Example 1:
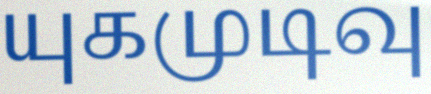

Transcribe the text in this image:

யுகமுடிவு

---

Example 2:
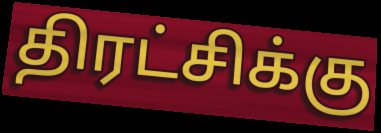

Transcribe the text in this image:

திரட்சிக்கு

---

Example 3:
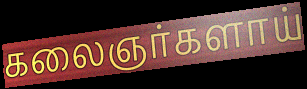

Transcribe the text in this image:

கலைஞர்களாய்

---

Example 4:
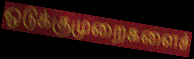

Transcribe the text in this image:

ஒடுக்குமுறைகளைச்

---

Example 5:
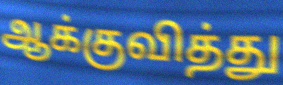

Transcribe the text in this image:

ஆக்குவித்து